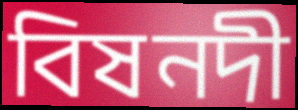
বিষনদী